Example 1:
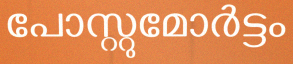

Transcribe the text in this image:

പോസ്റ്റുമോർട്ടം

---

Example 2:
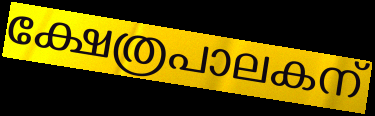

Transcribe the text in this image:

ക്ഷേത്രപാലകന്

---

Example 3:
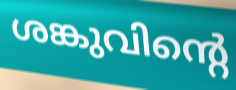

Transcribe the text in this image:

ശങ്കുവിന്റെ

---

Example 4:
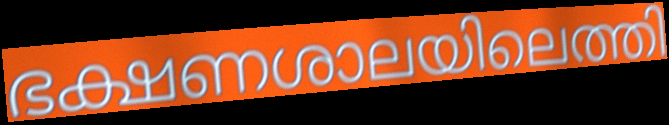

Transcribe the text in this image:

ഭക്ഷണശാലയിലെത്തി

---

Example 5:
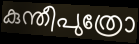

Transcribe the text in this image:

കുന്തീപുത്രോ